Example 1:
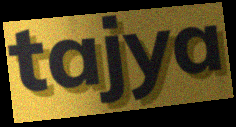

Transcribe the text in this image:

tajya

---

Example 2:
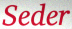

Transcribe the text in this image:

Seder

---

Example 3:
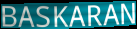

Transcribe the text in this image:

BASKARAN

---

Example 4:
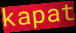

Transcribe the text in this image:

kapat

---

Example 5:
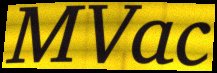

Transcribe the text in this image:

MVac